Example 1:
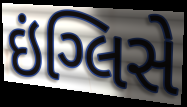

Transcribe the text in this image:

ઇંગ્લિસે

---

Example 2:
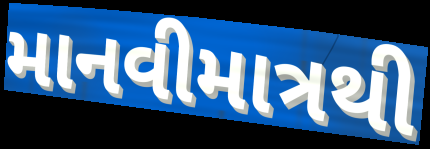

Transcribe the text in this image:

માનવીમાત્રથી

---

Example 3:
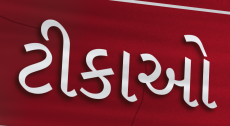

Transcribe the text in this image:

ટીકાઓ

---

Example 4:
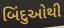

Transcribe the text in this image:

બિંદુઓથી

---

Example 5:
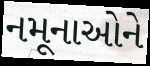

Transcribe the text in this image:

નમૂનાઓને